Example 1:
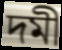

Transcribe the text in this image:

দমী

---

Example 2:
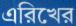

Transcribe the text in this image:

এরিখের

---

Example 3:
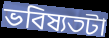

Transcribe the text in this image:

ভবিষ্যতটা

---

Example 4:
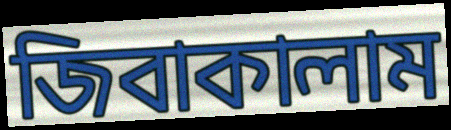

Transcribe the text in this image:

জিবাকালাম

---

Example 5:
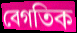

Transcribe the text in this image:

বেগতিক